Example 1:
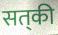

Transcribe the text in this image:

सत्‌की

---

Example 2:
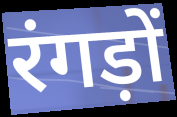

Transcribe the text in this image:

रंगड़ों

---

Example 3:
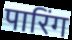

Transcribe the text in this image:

पारिंग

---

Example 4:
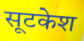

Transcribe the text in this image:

सूटकेश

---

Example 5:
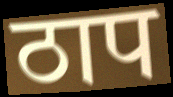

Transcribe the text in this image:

ठाप